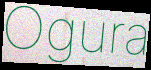
Ogura